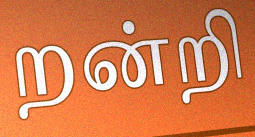
றன்றி